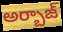
అర్బాజ్